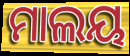
ମାଲୟ